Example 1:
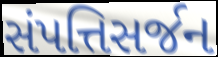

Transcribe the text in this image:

સંપત્તિસર્જન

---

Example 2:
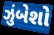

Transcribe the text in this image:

ઝુંબેશો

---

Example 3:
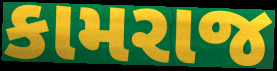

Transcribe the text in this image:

કામરાજ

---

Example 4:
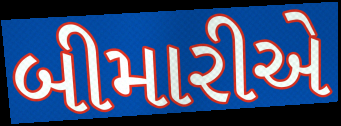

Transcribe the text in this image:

બીમારીએ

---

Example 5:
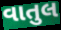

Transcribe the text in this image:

વાતુલ